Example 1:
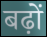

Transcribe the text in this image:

बढ़ों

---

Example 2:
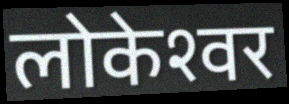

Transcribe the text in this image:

लोकेश्वर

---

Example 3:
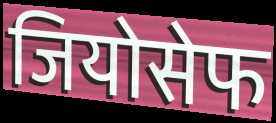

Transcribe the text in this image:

जियोसेफ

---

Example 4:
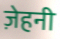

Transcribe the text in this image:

ज़ेहनी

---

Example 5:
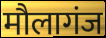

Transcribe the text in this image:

मौलागंज